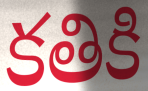
కతికి